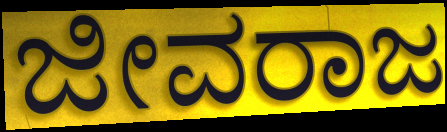
ಜೀವರಾಜ